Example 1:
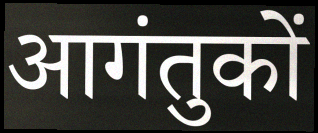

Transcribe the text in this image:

आगंतुकों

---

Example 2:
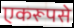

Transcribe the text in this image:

एकरूपसे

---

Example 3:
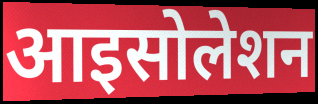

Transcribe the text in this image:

आइसोलेशन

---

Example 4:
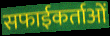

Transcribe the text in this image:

सफाईकर्ताओं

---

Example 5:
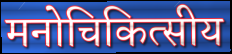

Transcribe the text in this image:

मनोचिकित्सीय